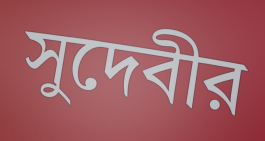
সুদেবীর